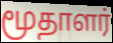
மூதாளர்